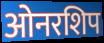
ओनरशिप